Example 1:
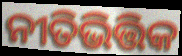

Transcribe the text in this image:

ନୀତିଭିତ୍ତିକ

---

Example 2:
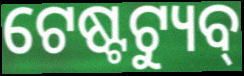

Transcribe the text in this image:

ଟେଷ୍ଟଟ୍ୟୁବ୍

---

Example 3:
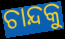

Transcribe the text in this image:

ଚାନ୍ଦକୁ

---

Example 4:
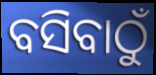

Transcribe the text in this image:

ବସିବାଠୁଁ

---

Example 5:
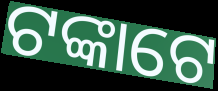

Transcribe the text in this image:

ଟଙ୍କାଟେ